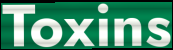
Toxins